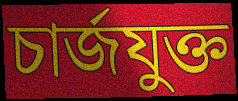
চার্জযুক্ত